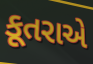
કૂતરાએ